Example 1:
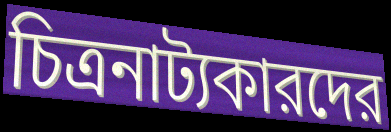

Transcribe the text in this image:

চিত্রনাট্যকারদের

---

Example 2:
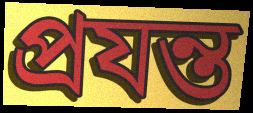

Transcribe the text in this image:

প্রযন্ত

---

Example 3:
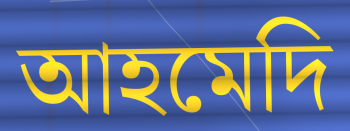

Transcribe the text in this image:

আহমেদি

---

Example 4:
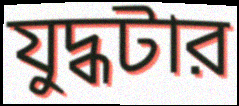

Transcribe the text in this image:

যুদ্ধটার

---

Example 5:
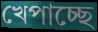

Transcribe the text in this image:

খেপাচ্ছে